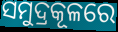
ସମୁଦ୍ରକୂଳରେ